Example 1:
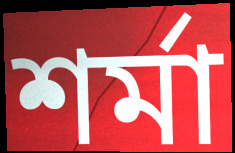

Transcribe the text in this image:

শৰ্মা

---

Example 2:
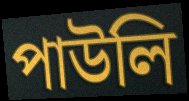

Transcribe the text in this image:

পাউলি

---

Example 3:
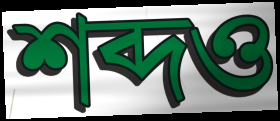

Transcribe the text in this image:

শব্দও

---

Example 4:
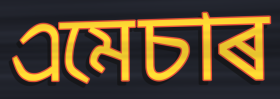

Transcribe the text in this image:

এমেচাৰ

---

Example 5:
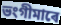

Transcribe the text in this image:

ভংগীমাৰে